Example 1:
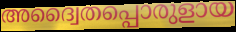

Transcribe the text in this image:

അദ്വൈതപ്പൊരുളായ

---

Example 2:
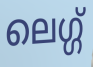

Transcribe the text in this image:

ലെഗ്ഗ്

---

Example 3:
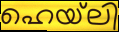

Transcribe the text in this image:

ഹെയ്‌ലി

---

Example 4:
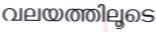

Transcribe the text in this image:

വലയത്തിലൂടെ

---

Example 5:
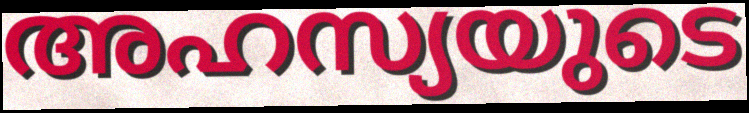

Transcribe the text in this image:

അഹസ്യയുടെ